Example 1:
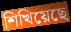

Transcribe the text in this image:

শিখিয়েছে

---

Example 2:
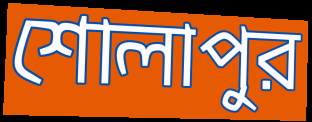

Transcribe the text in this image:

শোলাপুর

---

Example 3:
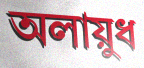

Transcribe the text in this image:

অলায়ুধ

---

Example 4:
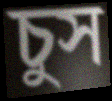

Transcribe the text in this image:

চুস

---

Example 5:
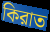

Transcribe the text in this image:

কিরাত